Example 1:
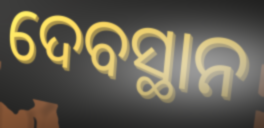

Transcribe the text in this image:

ଦେବସ୍ଥାନ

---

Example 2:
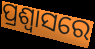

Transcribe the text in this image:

ପ୍ରଶ୍ବାସରେ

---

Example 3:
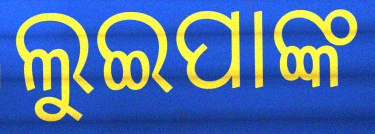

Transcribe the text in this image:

ଲୁଇପାଙ୍କ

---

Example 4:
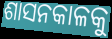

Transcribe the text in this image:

ଶାସନକାଳକୁ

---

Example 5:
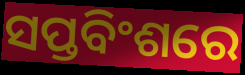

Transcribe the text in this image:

ସପ୍ତବିଂଶରେ